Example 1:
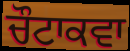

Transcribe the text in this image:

ਚੌਟਾਕਵਾ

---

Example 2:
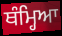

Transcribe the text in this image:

ਥੰਮ੍ਹਿਆ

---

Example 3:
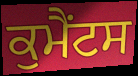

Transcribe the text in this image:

ਕੁਮੈਂਟਸ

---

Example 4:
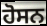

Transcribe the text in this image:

ਹੋਸਨ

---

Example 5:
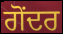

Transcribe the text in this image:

ਗੋਂਦਰ